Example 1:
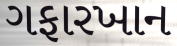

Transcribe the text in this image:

ગફારખાન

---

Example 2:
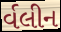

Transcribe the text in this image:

ર્વલીન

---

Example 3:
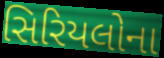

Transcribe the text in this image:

સિરિયલોના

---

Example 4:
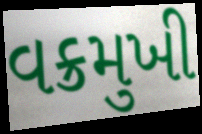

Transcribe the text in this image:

વક્રમુખી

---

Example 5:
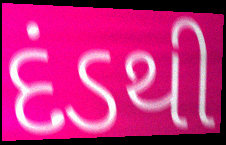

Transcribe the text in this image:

દંડથી